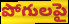
పోగులపై